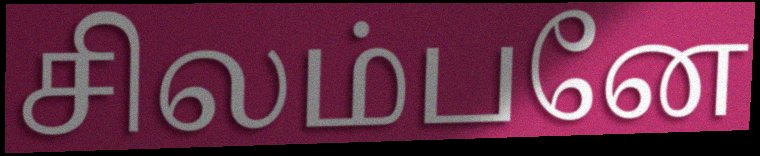
சிலம்பனே